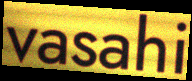
vasahi